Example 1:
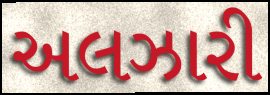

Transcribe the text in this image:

અલઝારી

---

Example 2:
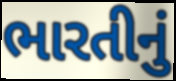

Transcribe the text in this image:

ભારતીનું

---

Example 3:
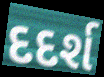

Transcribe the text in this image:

દદર્શ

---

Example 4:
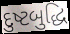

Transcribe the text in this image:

દુષ્ટબુદ્ધિ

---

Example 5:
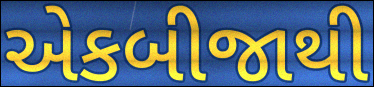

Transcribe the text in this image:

એકબીજાથી